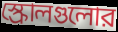
স্ক্রোলগুলোর